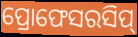
ପ୍ରୋଫେସରସିପ୍